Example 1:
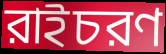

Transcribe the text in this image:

রাইচরণ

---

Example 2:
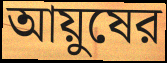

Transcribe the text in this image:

আয়ুষের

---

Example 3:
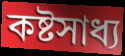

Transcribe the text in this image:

কষ্টসাধ্য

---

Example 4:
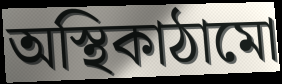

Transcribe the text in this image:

অস্থিকাঠামো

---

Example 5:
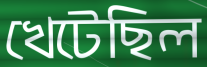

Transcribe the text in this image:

খেটেছিল